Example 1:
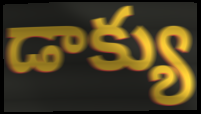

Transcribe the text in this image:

డాక్యు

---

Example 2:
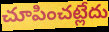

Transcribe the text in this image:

చూపించట్లేదు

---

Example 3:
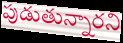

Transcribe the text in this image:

పుడుతున్నారని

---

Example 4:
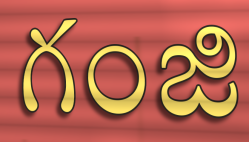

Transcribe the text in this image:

గంజి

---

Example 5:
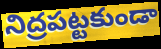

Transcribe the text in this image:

నిద్రపట్టకుండా